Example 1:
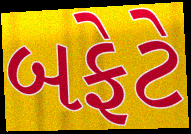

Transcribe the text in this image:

બફેટે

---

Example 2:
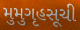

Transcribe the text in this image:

મુમુગૃહસૂચી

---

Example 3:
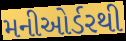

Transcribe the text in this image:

મનીઓર્ડરથી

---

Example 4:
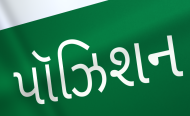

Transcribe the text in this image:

પૉઝિશન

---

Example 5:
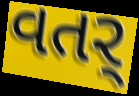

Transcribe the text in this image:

વતર્